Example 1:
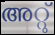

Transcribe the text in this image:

അറ്റു്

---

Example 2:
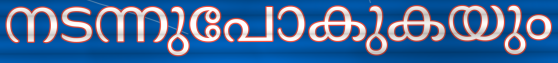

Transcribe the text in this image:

നടന്നുപോകുകയും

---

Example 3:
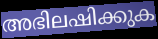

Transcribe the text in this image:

അഭിലഷിക്കുക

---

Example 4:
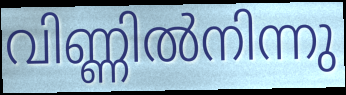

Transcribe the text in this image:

വിണ്ണിൽനിന്നു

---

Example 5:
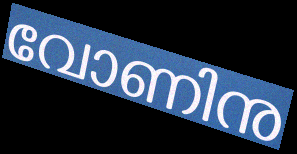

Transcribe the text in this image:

വോണിനു